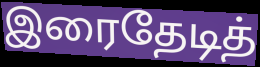
இரைதேடித்